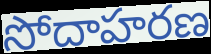
సోదాహరణ